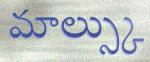
మాల్స్కు